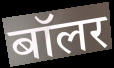
बॉलर